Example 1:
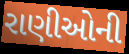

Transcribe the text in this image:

રાણીઓની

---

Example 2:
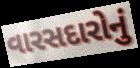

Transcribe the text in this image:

વારસદારોનું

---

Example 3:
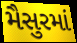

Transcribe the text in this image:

મૈસુરમાં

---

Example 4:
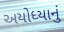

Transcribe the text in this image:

અયોધ્યાનું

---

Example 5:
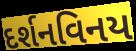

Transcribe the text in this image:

દર્શનવિનય